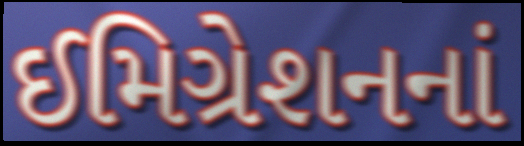
ઈમિગ્રેશનનાં